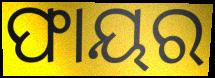
ଫାୟର